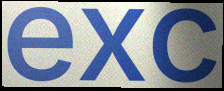
exc